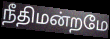
நீதிமன்றமே